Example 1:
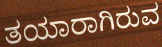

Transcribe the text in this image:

ತಯಾರಾಗಿರುವ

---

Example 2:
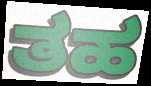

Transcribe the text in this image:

ತಹ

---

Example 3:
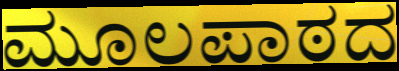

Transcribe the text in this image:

ಮೂಲಪಾಠದ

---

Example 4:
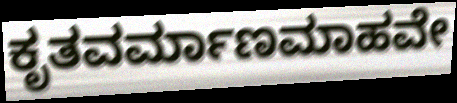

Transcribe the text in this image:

ಕೃತವರ್ಮಾಣಮಾಹವೇ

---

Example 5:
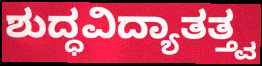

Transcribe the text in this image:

ಶುದ್ಧವಿದ್ಯಾತತ್ತ್ವ